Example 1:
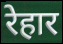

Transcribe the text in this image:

रेहार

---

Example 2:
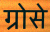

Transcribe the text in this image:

ग्रोसे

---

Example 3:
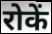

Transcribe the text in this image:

रोकें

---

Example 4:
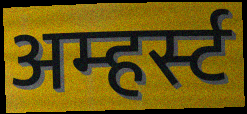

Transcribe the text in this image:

अम्हर्स्ट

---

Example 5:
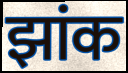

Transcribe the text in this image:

झांक